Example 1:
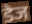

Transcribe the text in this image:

डेज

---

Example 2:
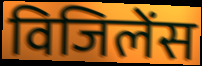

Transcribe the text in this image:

विजिलेंस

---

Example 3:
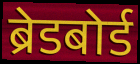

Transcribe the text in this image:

ब्रेडबोर्ड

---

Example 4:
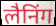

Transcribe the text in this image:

लैनिंग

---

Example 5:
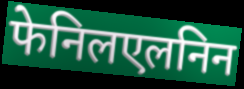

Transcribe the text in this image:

फेनिलएलनिन